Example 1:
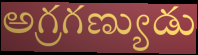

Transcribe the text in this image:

అగ్రగణ్యుడు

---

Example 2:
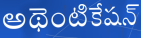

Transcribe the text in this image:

అథెంటికేషన్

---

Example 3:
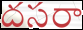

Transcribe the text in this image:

దసరా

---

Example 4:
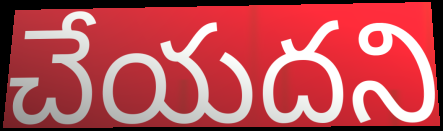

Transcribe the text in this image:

చేయదని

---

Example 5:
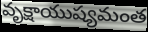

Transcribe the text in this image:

వృక్షాయుష్యమంత